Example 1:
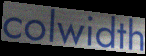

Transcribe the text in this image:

colwidth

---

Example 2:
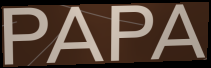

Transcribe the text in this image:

PAPA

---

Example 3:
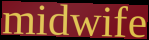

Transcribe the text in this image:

midwife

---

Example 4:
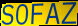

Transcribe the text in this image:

SOFAZ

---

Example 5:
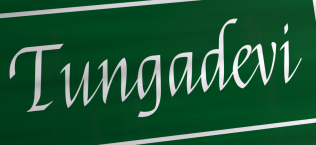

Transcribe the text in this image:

Tungadevi